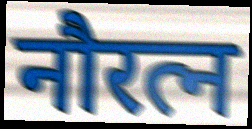
नौरत्न